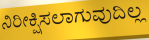
ನಿರೀಕ್ಷಿಸಲಾಗುವುದಿಲ್ಲ